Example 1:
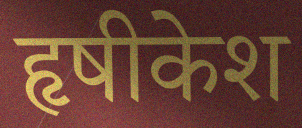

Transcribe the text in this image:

हृषीकेश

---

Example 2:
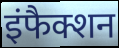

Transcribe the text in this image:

इंफैक्शन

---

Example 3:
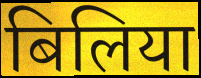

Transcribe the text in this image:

बिलिया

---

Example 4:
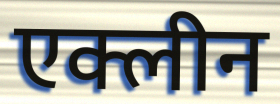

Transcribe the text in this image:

एक्लीन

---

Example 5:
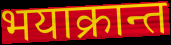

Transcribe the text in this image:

भयाक्रान्त